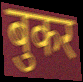
बुकर